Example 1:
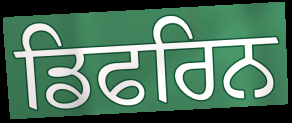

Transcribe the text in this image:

ਡਿਫਰਿਨ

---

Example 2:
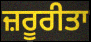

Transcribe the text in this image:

ਜ਼ਰੂਰੀਤਾ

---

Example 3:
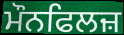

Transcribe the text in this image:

ਮੌਨਫਿਲਜ਼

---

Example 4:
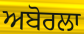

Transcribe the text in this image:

ਅਬੋਰਲਾ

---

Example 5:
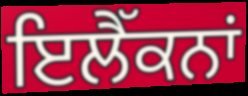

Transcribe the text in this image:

ਇਲੈੱਕਨਾਂ